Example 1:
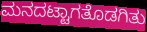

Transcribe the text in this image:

ಮನದಟ್ಟಾಗತೊಡಗಿತು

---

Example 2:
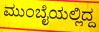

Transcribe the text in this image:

ಮುಂಬೈಯಲ್ಲಿದ್ದ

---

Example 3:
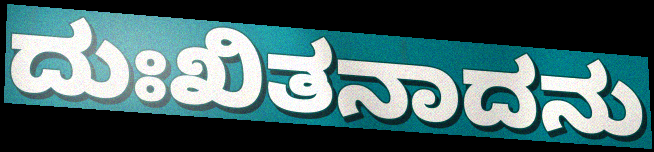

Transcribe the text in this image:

ದುಃಖಿತನಾದನು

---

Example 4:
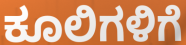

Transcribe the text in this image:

ಕೂಲಿಗಳಿಗೆ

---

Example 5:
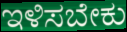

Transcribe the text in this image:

ಇಳಿಸಬೇಕು